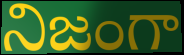
నిజంగా